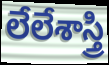
లేలేశాస్త్రి